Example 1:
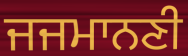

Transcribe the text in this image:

ਜਜਮਾਨਣੀ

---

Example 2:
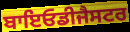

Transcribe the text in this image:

ਬਾਇਓਡੀਜੈਸਟਰ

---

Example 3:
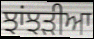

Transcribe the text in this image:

ਝਾਂਝੜੀਆ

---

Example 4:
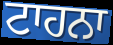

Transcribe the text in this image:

ਟਾਹਨਾ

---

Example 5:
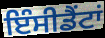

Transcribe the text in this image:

ਇੰਸੀਡੈਂਟਾਂ